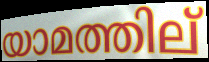
യാമത്തില്